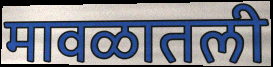
मावळातली